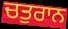
ਚਤੁਰਾਨ